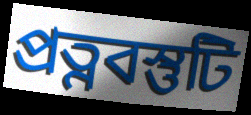
প্রত্নবস্তুটি